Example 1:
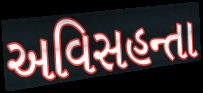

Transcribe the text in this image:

અવિસહન્તા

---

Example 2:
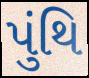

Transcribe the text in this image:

પુંથિ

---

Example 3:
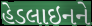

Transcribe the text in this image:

હેડલાઇનને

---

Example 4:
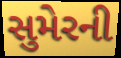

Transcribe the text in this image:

સુમેરની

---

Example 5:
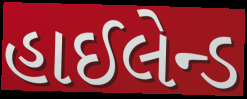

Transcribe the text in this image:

હાઈલેન્ડ